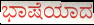
ಭಾಷೆಯಾದ